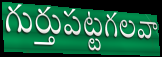
గుర్తుపట్టగలవా